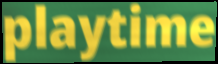
playtime